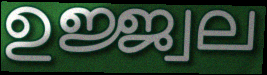
ഉജ്ജ്വല